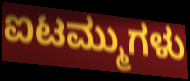
ಐಟಮ್ಮುಗಳು